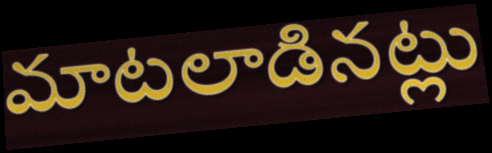
మాటలాడినట్లు